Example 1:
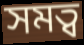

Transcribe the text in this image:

সমত্ব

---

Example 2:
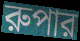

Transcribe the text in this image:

রুপার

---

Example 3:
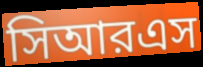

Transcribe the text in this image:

সিআরএস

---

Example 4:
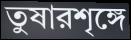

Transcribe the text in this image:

তুষারশৃঙ্গে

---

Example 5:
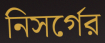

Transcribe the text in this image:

নিসর্গের